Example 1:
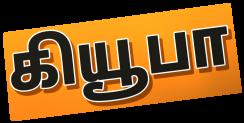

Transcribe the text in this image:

கியூபா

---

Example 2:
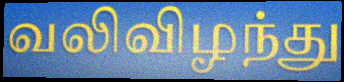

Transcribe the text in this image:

வலிவிழந்து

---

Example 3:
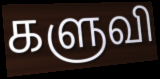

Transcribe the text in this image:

களுவி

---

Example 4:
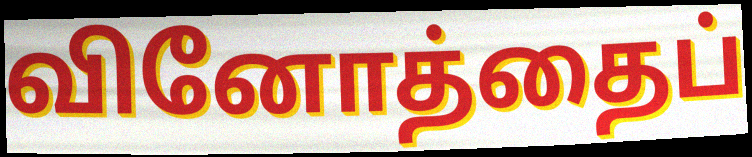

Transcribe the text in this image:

வினோத்தைப்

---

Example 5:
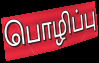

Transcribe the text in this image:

பொழிப்பு